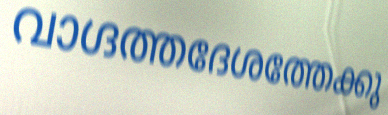
വാഗ്ദത്തദേശത്തേക്കു